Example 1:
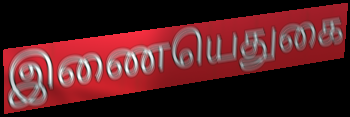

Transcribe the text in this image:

இணையெதுகை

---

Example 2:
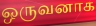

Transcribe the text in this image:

ஒருவனாக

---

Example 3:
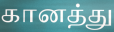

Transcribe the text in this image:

கானத்து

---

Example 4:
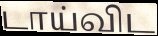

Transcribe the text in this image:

டாய்விட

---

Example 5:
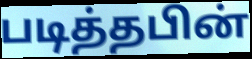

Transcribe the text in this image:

படித்தபின்